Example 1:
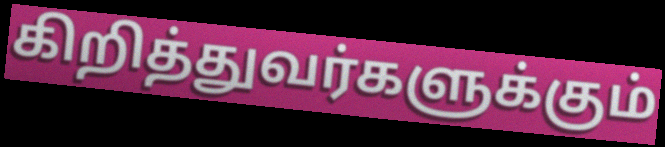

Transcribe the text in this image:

கிறித்துவர்களுக்கும்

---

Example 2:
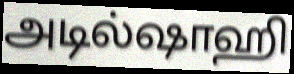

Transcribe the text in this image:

அடில்ஷாஹி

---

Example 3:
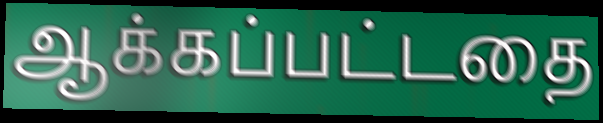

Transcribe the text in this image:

ஆக்கப்பட்டதை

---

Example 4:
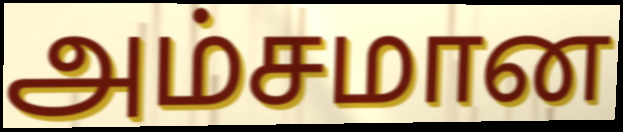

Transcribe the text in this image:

அம்சமான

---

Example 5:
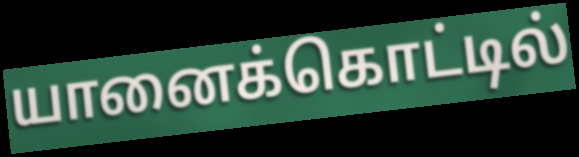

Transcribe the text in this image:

யானைக்கொட்டில்